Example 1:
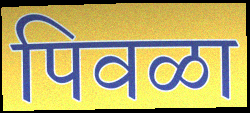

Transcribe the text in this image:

पिवळा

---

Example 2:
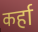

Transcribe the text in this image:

कर्हा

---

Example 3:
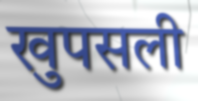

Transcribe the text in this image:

खुपसली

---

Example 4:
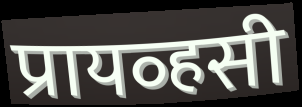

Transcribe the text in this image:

प्रायव्हसी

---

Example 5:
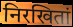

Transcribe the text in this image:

निरखितां